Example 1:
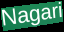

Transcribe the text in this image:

Nagari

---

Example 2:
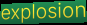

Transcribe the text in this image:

explosion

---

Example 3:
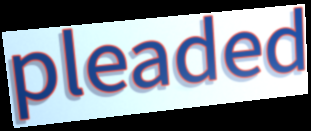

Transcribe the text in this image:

pleaded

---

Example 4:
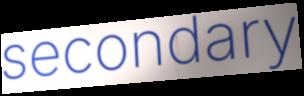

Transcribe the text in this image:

secondary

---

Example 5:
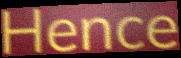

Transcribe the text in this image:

Hence